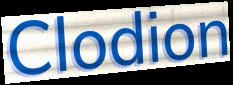
Clodion